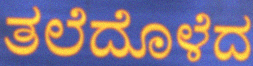
ತಲೆದೊಳೆದ